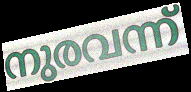
നുരവന്ന്